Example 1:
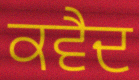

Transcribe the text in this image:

ਕਵੈਦ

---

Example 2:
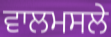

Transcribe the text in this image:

ਵਾਲਮਸਲੇ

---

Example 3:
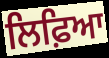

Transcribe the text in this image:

ਲਿਫ਼ਿਆ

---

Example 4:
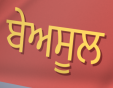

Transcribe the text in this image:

ਬੇਅਸੂਲ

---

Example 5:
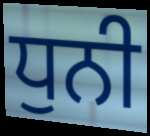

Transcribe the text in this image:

ਧੁਨੀ